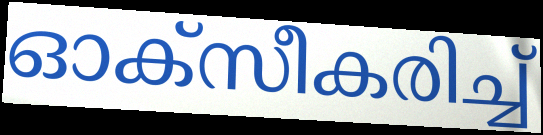
ഓക്സീകരിച്ച്